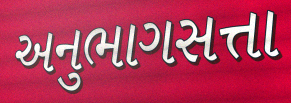
અનુભાગસત્તા